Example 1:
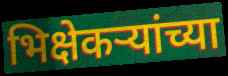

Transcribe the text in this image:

भिक्षेकऱ्यांच्या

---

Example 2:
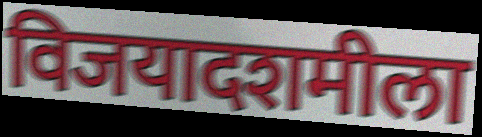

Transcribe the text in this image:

विजयादशमीला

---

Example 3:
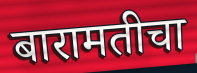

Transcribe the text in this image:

बारामतीचा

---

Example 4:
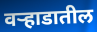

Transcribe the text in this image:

वर्‍हाडातील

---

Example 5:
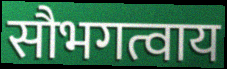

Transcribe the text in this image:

सौभगत्वाय